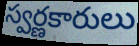
స్వర్ణకారులు